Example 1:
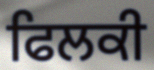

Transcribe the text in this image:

ਫਿਲਕੀ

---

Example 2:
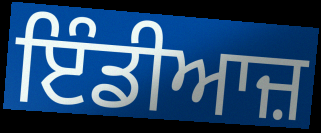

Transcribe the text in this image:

ਇੰਡੀਆਜ਼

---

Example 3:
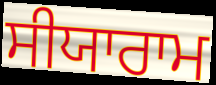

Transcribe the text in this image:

ਸੀਯਾਰਾਮ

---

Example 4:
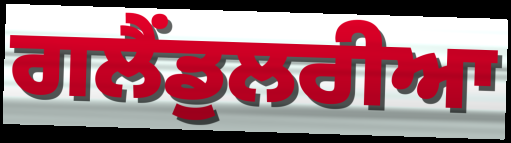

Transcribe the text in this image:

ਗਲੈਂਡੁਲਰੀਆ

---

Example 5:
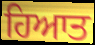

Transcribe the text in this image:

ਹਿਆਤ